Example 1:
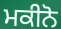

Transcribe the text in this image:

ਮਕੀਨੋ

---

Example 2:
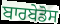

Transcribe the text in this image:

ਬਾਰਬੇਡੋਸ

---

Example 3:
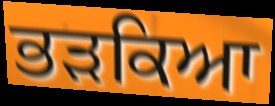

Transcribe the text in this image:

ਭੜਕਿਆ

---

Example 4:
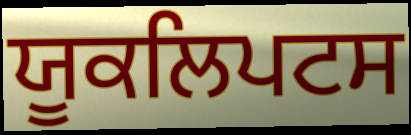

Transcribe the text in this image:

ਯੂਕਲਿਪਟਸ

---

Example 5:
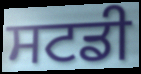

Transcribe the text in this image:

ਸਟਡੀ